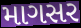
માગસર